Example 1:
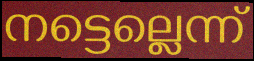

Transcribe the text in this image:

നട്ടെല്ലെന്ന്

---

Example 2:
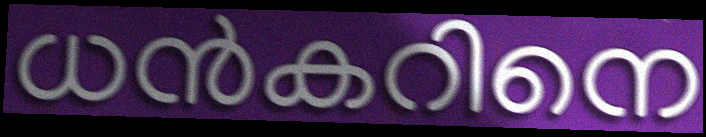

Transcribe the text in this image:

ധൻകറിനെ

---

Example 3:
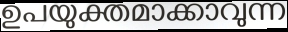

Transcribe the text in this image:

ഉപയുക്തമാക്കാവുന്ന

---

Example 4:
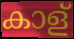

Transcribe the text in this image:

കാള്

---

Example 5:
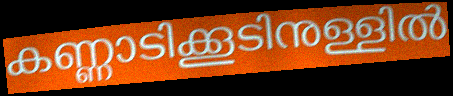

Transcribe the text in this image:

കണ്ണാടിക്കൂടിനുള്ളിൽ